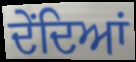
ਦੇਂਦਿਆਂ